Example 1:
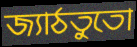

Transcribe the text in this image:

জ্যাঠতুতো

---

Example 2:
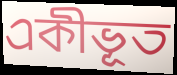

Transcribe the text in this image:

একীভূত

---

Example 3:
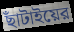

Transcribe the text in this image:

ছাঁটাইয়ের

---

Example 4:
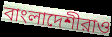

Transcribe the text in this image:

বাংলাদেশীরাও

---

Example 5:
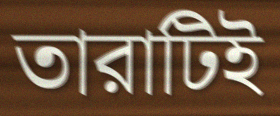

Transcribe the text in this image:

তারাটিই